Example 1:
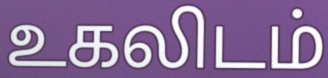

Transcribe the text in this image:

உகலிடம்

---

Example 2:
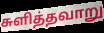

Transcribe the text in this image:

சுளித்தவாறு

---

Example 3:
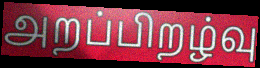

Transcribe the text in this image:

அறப்பிறழ்வு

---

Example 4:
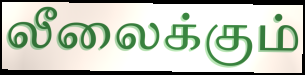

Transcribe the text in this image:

லீலைக்கும்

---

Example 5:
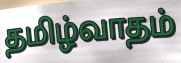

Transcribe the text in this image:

தமிழ்வாதம்